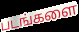
படங்களை